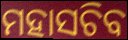
ମହାସଚିବ